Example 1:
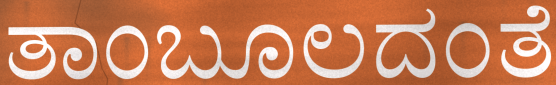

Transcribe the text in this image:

ತಾಂಬೂಲದಂತೆ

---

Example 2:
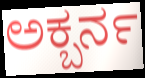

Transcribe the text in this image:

ಅಕ್ಬರ್ನ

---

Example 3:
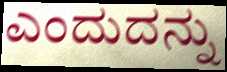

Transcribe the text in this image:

ಎಂದುದನ್ನು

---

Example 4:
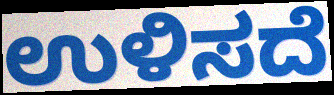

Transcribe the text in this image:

ಉಳಿಸದೆ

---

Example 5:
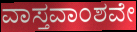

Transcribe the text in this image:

ವಾಸ್ತವಾಂಶವೇ